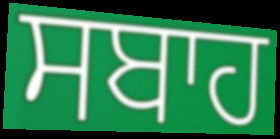
ਸਬਾਹ